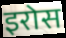
इरोस